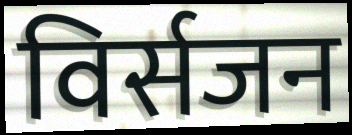
विर्सजन